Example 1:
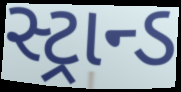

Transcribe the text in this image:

સ્ટ્રાન્ડ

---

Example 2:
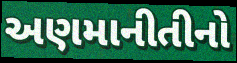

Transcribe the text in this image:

અણમાનીતીનો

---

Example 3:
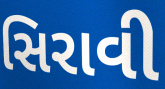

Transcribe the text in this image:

સિરાવી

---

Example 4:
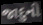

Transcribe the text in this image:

જાદુની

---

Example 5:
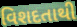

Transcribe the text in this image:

વિશદતાથી